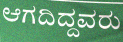
ಆಗದಿದ್ದವರು